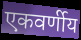
एकवर्णीय